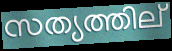
സത്യത്തില്